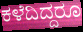
ಕಳೆದಿದ್ದರೂ